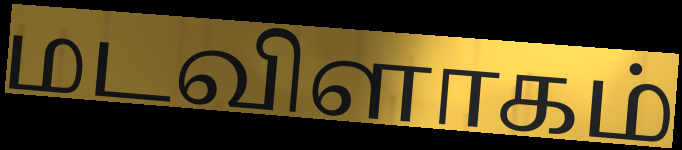
மடவிளாகம்